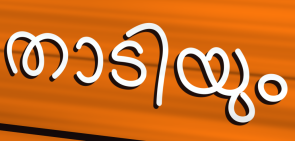
താടിയും